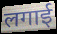
लगाई